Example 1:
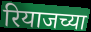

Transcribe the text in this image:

रियाजच्या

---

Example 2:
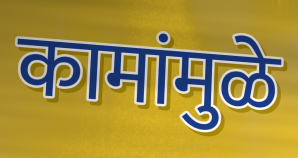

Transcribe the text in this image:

कामांमुळे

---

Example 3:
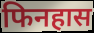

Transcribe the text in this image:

फिनहास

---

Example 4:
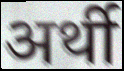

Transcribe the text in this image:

अर्थी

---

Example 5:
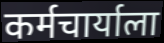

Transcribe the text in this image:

कर्मचार्याला